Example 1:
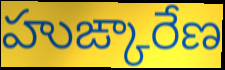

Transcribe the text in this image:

హుఙ్కారేణ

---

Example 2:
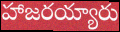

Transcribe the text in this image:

హాజరయ్యారు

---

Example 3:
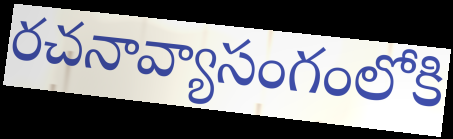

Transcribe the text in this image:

రచనావ్యాసంగంలోకి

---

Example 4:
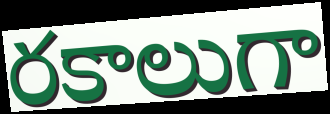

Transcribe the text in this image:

రకాలుగా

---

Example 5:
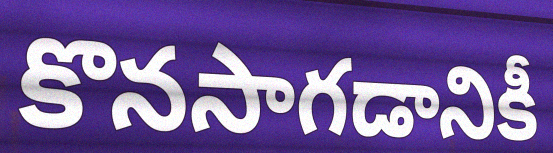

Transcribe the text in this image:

కొనసాగడానికీ